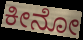
ಕೀನೋ